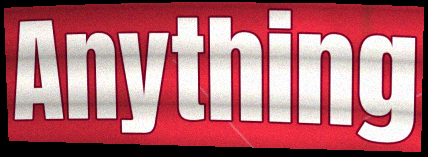
Anything